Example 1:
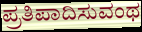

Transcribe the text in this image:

ಪ್ರತಿಪಾದಿಸುವಂಥ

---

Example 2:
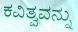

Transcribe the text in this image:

ಕವಿತ್ವವನ್ನು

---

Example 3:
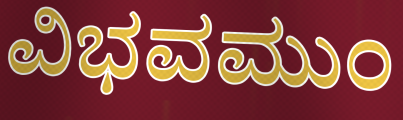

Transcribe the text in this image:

ವಿಭವಮುಂ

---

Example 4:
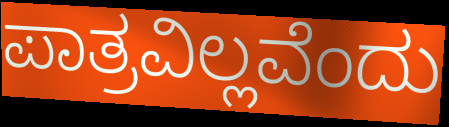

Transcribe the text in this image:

ಪಾತ್ರವಿಲ್ಲವೆಂದು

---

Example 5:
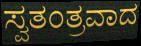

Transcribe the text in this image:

ಸ್ವತಂತ್ರವಾದ